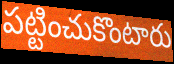
పట్టించుకొంటారు